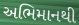
અભિમાનથી